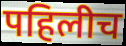
पहिलीच